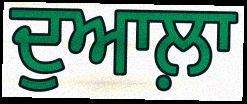
ਦੁਆਲ਼ਾ